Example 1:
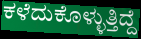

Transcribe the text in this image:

ಕಳೆದುಕೊಳ್ಳುತ್ತಿದ್ದೆ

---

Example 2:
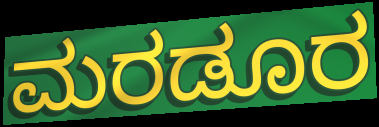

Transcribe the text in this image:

ಮರಡೂರ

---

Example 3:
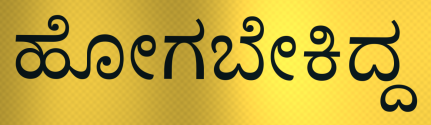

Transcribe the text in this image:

ಹೋಗಬೇಕಿದ್ದ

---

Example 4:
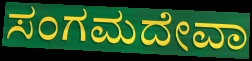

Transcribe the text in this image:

ಸಂಗಮದೇವಾ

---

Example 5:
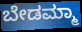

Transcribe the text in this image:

ಬೇಡಮ್ಮಾ